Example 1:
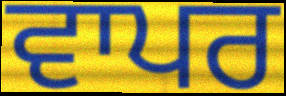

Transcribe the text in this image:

ਵਾਪਰ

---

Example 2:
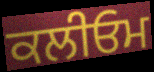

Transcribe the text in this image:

ਕਲੀਓਮ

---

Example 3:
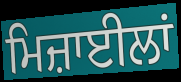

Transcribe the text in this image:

ਮਿਜ਼ਾਈਲਾਂ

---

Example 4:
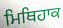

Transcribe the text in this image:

ਮਿਥਿਹਾਕ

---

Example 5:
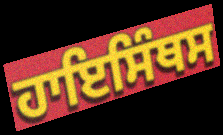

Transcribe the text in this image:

ਹਾਇਸਿੰਥਸ